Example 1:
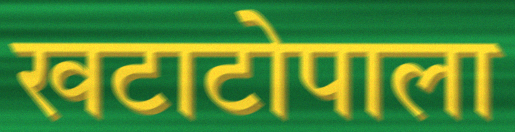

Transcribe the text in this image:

खटाटोपाला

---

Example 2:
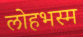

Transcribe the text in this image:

लोहभस्म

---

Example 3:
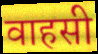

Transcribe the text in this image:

वाहसी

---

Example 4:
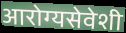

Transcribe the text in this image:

आरोग्यसेवेशी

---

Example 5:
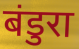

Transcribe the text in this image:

बंडुरा